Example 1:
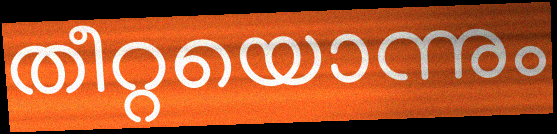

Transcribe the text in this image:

തീറ്റയൊന്നും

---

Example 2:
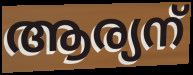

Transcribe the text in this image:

ആര്യന്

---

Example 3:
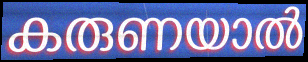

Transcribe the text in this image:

കരുണയാൽ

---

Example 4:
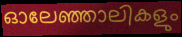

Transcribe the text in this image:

ഓലേഞ്ഞാലികളും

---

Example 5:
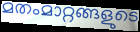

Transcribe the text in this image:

മതംമാറ്റങ്ങളുടെ